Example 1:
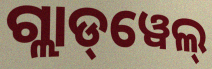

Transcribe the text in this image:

ଗ୍ଲାଡ୍‌ୱେଲ୍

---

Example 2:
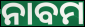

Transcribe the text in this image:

ନାବମ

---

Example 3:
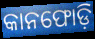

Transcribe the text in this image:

କାନଫୋଡ଼ି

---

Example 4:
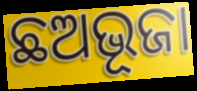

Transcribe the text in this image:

ଛଅଭୂଜା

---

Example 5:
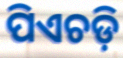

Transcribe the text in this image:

ପିଏଚଡ଼ି